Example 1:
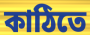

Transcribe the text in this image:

কাঠিতে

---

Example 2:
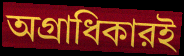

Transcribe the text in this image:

অগ্রাধিকারই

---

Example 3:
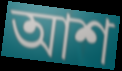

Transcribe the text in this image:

আশ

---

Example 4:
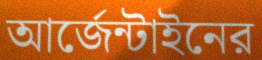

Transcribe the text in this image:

আর্জেন্টাইনের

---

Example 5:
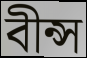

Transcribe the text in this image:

বীন্স